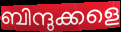
ബിന്ദുക്കളെ